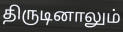
திருடினாலும்